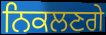
ਨਿਕਲਣਗੇ